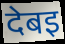
देबइ